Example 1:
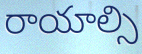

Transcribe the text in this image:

రాయాల్సి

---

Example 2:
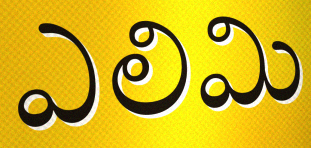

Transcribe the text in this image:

ఎలిమి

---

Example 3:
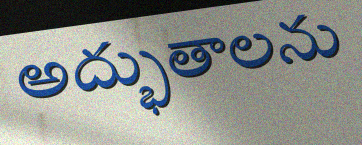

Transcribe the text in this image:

అద్భుతాలను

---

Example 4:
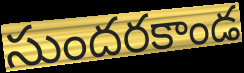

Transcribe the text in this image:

సుందరకాండ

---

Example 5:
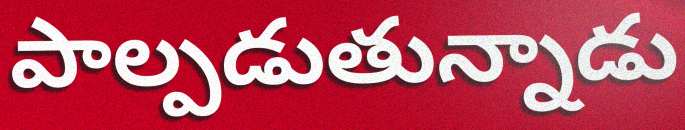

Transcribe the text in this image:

పాల్పడుతున్నాడు